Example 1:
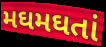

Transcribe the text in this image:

મઘમઘતાં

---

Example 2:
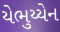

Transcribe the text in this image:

યેભુય્યેન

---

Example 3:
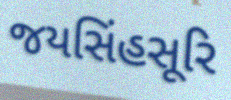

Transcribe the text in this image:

જયસિંહસૂરિ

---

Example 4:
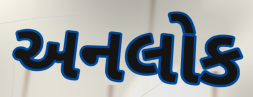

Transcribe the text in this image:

અનલોક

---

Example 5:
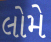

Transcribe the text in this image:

લોમે